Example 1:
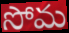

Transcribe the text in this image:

సోమ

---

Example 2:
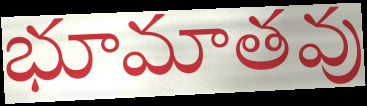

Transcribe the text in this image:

భూమాతవు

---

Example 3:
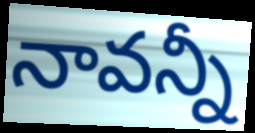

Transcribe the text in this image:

నావన్నీ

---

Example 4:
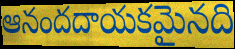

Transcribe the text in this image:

ఆనందదాయకమైనది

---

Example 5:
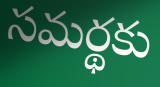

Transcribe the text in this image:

సమర్థకు